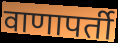
वाणापर्ती